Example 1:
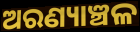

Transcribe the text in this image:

ଅରଣ୍ୟାଞ୍ଚଳ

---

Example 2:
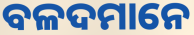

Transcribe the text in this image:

ବଳଦମାନେ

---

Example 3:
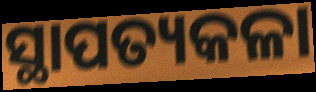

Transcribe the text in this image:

ସ୍ଥାପତ୍ୟକଳା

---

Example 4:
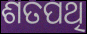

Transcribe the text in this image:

ଶତପଥି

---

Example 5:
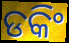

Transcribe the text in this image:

ଡକିଂ